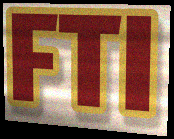
FTI